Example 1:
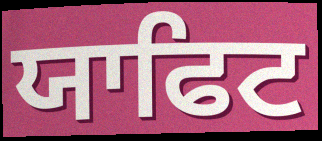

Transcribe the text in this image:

ਯਾਫਿਟ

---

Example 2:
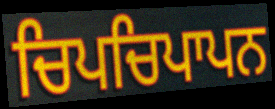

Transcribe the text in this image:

ਚਿਪਚਿਪਾਪਨ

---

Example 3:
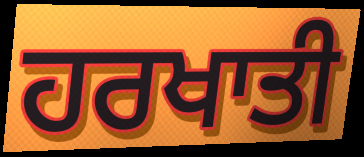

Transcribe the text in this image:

ਹਰਖਾਤੀ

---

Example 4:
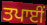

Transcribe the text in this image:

ਤਪਾਈਂ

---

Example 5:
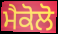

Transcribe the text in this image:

ਮੈਕੋਲੋ